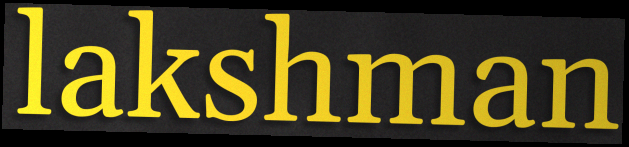
lakshman